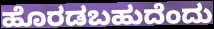
ಹೊರಡಬಹುದೆಂದು